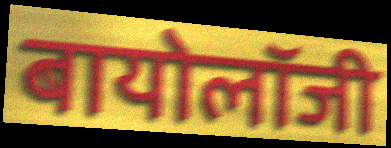
बायोलॉजी